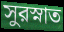
সুরস্নাত